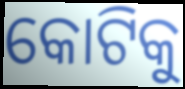
କୋଟିକୁ